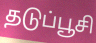
தடுப்பூசி